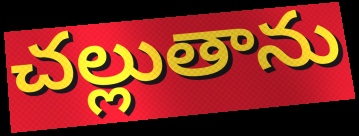
చల్లుతాను